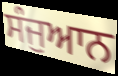
ਸੰਜੁਆਨ